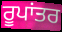
ਰੂਪਾਂਤਰ